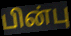
பின்பு